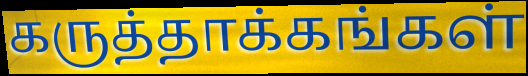
கருத்தாக்கங்கள்